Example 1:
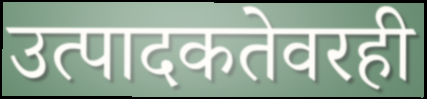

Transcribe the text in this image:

उत्पादकतेवरही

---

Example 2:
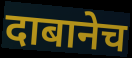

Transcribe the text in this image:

दाबानेच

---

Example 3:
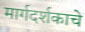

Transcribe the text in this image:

मार्गदर्शकाचे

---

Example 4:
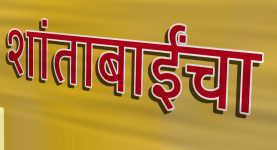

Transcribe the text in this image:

शांताबाईंचा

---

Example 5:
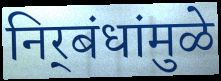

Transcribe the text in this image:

निर्बंधांमुळे